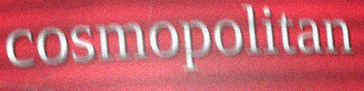
cosmopolitan